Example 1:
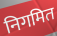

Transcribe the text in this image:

निगमित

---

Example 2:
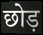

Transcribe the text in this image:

छोड़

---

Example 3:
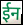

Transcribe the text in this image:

ईन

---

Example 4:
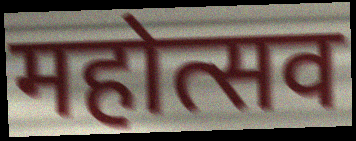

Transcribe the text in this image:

महोत्सव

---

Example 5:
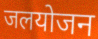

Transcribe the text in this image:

जलयोजन